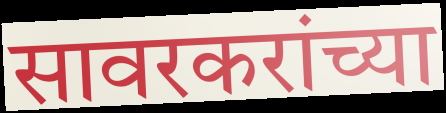
सावरकरांच्या